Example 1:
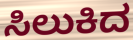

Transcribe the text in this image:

ಸಿಲುಕಿದ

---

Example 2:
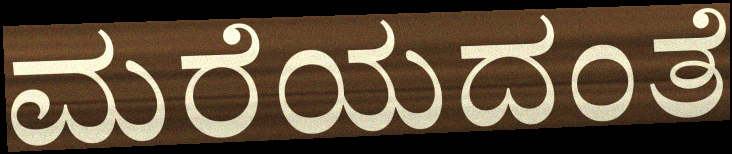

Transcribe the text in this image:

ಮರೆಯದಂತೆ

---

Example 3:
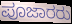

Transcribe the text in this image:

ಪೂಜಾರರು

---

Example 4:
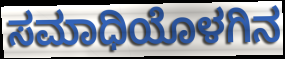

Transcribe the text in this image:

ಸಮಾಧಿಯೊಳಗಿನ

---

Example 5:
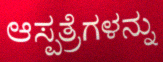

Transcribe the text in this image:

ಆಸ್ಪತ್ರೆಗಳನ್ನು